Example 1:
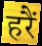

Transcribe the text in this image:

हरैं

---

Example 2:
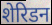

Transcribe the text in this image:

शेरिडन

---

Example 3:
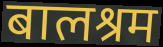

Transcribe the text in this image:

बालश्रम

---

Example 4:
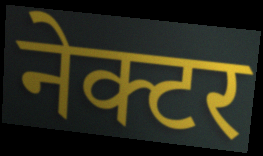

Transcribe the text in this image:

नेक्टर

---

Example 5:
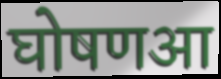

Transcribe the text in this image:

घोषणआ